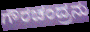
ಗೌರಚಂದ್ರನು